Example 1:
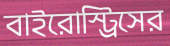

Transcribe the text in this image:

বাইরোস্ট্রিসের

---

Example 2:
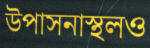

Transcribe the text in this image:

উপাসনাস্থলও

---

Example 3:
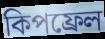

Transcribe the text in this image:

কিপফ্রেল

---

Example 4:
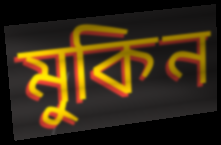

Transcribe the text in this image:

মুকিন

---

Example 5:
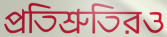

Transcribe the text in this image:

প্রতিশ্রুতিরও